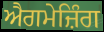
ਐਗਮੇਜ਼ਿੰਗ